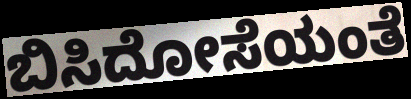
ಬಿಸಿದೋಸೆಯಂತೆ